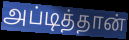
அப்டித்தான்